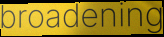
broadening